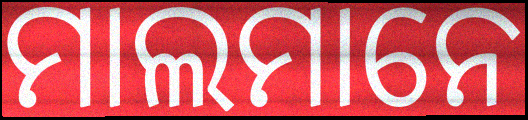
ମାଲମାନେ